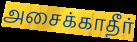
அசைக்காதீர்